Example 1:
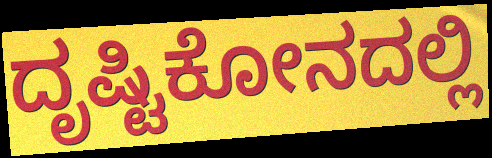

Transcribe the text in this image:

ದೃಷ್ಟಿಕೋನದಲ್ಲಿ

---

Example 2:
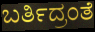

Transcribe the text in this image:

ಬರ್ತಿದ್ರಂತೆ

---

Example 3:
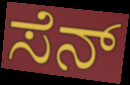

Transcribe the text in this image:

ಸೆನ್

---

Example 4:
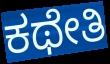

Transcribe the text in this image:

ಕಥೇತಿ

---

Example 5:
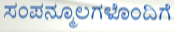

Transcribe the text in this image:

ಸಂಪನ್ಮೂಲಗಳೊಂದಿಗೆ